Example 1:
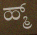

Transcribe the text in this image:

ಹ್ಮ್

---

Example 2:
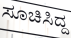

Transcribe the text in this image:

ಸೂಚಿಸಿದ್ದ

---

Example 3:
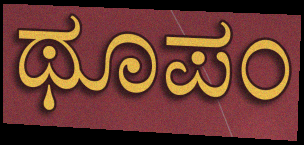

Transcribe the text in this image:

ಥೂಪಂ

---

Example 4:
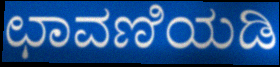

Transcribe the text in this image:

ಛಾವಣಿಯಡಿ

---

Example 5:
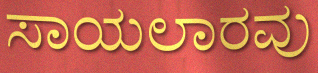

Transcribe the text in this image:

ಸಾಯಲಾರವು